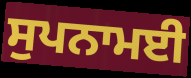
ਸੁਪਨਾਮਈ